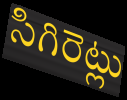
సిగిరెట్లు